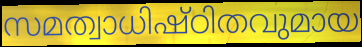
സമത്വാധിഷ്ഠിതവുമായ